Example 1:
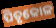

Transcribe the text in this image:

ପିତୃକୋଳ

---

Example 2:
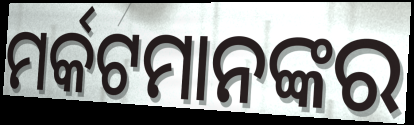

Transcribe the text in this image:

ମର୍କଟମାନଙ୍କର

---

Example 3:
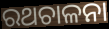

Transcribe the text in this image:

ରଥଚାଳନା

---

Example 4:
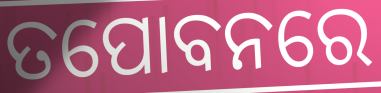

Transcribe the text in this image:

ତପୋବନରେ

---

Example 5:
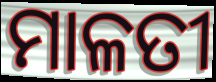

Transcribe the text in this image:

ମାଳତୀ